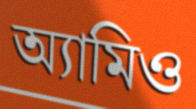
অ্যামিও